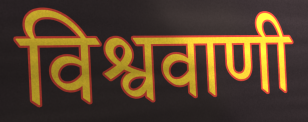
विश्ववाणी